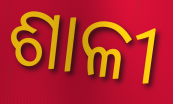
ଶାଳୀ